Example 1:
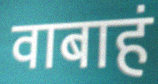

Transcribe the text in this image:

वाबाहं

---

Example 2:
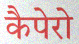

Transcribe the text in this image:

कैपेरो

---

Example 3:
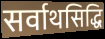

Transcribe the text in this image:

सर्वाथसिद्धि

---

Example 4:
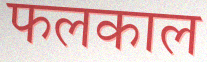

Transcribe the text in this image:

फलकाल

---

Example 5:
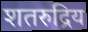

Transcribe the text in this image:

शतरुद्रिय